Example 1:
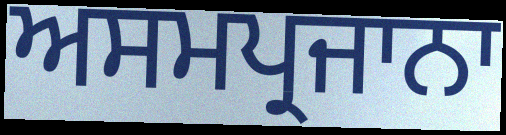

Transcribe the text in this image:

ਅਸਮਪ੍ਰਜਾਨਾ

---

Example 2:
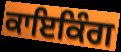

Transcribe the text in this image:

ਕਾਇਕਿੰਗ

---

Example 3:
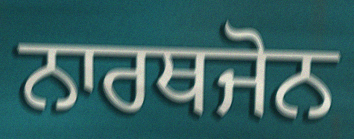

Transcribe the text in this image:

ਨਾਰਥਜੋਨ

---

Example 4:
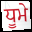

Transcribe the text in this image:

ਧੂਮੇ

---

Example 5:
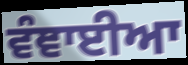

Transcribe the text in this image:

ਵੰਞਾਈਆ